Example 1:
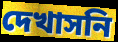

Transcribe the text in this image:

দেখাসনি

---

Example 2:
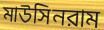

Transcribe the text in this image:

মাউসিনরাম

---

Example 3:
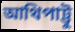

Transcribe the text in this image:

আথিপাট্টু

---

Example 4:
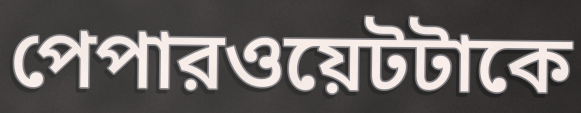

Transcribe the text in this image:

পেপারওয়েটটাকে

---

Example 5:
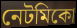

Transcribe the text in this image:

নেটমিকো